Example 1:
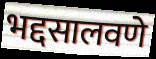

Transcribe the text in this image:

भद्दसालवणे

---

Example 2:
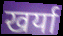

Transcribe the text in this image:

खर्या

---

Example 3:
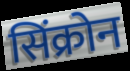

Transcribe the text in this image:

सिंक्रोन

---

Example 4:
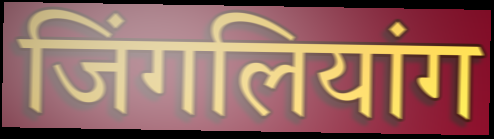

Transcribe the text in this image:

जिंगलियांग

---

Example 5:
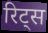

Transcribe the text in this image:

रिट्स